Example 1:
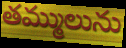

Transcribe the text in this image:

తమ్ములును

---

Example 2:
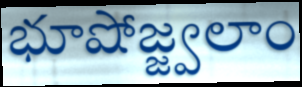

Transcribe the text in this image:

భూషోజ్జ్వలాం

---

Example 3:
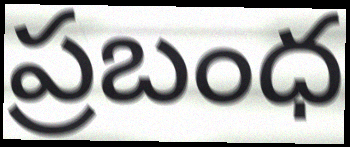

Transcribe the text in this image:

ప్రబంధ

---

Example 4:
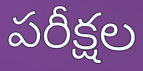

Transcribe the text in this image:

పరీక్షల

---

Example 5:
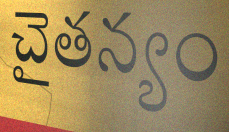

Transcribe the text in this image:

చైతన్యం